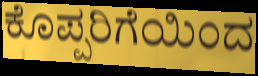
ಕೊಪ್ಪರಿಗೆಯಿಂದ